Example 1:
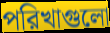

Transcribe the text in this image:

পরিখাগুলো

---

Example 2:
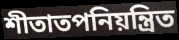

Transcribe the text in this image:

শীতাতপনিয়ন্ত্রিত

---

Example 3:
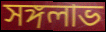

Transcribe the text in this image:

সঙ্গলাভ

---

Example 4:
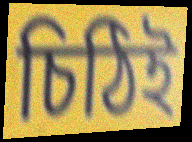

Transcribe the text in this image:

চিঠিই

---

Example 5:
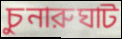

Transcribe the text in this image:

চুনারুঘাট